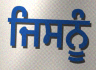
ਜਿਸਨੂੰ